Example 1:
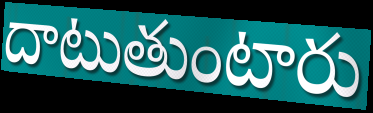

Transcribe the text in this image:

దాటుతుంటారు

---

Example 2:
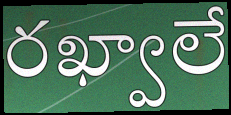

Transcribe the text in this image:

రఖ్వాలే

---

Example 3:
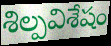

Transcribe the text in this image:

శిల్పవిశేషం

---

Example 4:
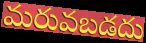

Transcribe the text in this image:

మరువబడదు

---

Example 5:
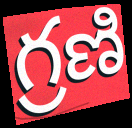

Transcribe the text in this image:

గ్రణి